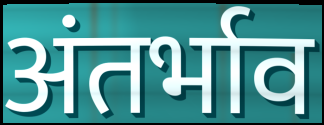
अंतर्भाव